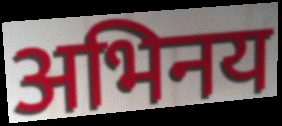
अभिनय